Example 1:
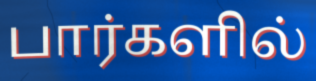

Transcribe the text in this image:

பார்களில்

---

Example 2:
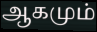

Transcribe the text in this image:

ஆகமும்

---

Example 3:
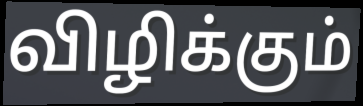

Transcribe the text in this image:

விழிக்கும்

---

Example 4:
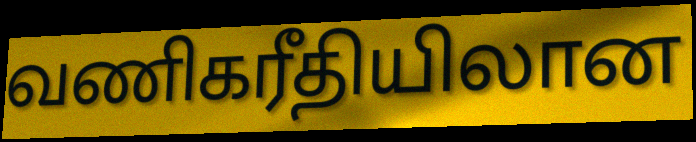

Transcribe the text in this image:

வணிகரீதியிலான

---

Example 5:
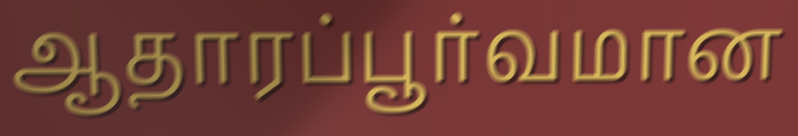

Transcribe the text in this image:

ஆதாரப்பூர்வமான